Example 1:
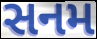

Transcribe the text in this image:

સનમ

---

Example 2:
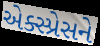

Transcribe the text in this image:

એક્સ્પ્રેસને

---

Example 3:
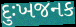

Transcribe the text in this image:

દુઃખજનક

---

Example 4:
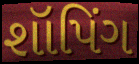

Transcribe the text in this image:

શૉપિંગ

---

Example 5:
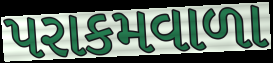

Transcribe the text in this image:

પરાકમવાળા